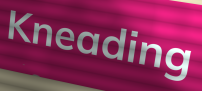
Kneading